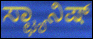
ಸ್ಟ್ಯಾನಿಷ್